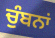
ਚੁੰਬਨਾਂ